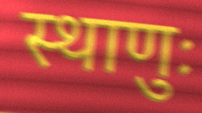
स्थाणुः